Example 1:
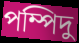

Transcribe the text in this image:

পম্পিদু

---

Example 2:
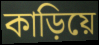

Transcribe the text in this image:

কাড়িয়ে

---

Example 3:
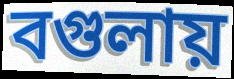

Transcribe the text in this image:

বগুলায়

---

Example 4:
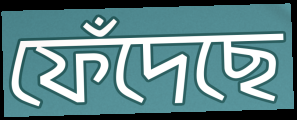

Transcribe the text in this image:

ফেঁদেছে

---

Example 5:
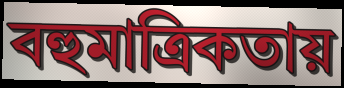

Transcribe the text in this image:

বহুমাত্রিকতায়